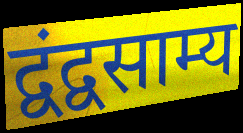
द्वंद्वसाम्य